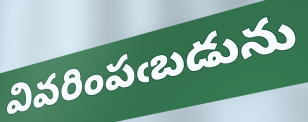
వివరింపఁబడును